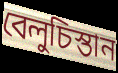
বেলুচিস্তান